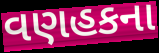
વણહકના